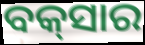
ବକ୍‌ସାର